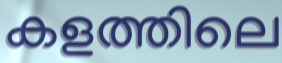
കളത്തിലെ